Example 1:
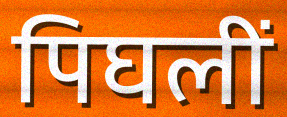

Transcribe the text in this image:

पिघलीं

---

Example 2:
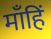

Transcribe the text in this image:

माँहिं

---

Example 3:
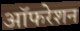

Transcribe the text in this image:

ऑफरेशन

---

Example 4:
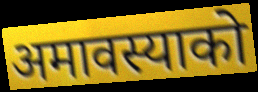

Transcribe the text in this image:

अमावस्याको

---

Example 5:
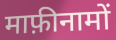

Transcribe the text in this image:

माफ़ीनामों